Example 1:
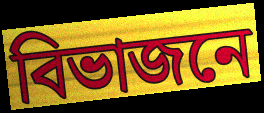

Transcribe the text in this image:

বিভাজনে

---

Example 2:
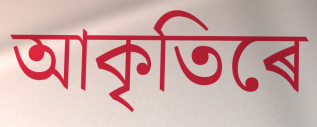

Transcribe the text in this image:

আকৃতিৰে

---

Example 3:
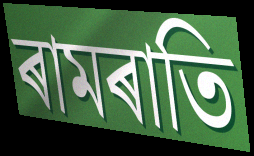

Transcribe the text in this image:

ৰামৰাতি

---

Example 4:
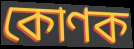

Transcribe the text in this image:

কোণক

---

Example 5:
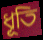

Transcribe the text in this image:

ধূতি